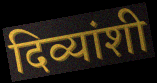
दिव्यांशी